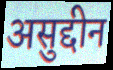
असुद्दीन